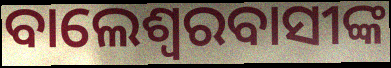
ବାଲେଶ୍ବରବାସୀଙ୍କ